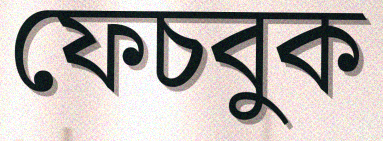
ফেচবুক